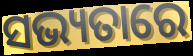
ସଭ୍ୟତାରେ